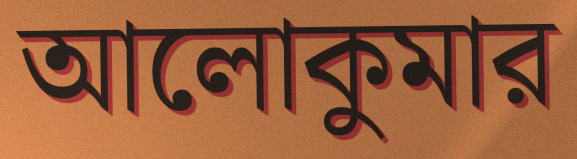
আলোকুমার